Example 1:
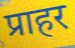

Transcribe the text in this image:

प्राहर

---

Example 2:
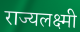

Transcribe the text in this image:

राज्यलक्ष्मी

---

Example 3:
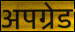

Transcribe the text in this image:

अपग्रेड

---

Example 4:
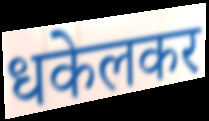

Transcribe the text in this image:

धकेलकर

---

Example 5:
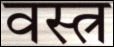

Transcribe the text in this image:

वस्‍त्र